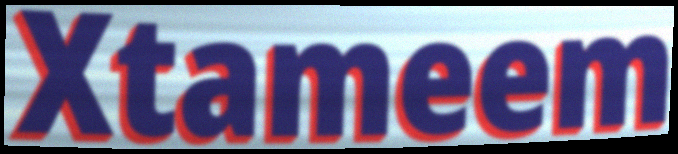
Xtameem